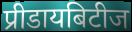
प्रीडायबिटीज